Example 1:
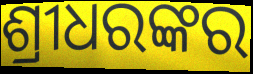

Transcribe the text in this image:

ଶ୍ରୀଧରଙ୍କର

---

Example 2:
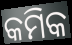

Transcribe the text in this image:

କମିକ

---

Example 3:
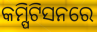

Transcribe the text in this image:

କମ୍ପିଟିସନରେ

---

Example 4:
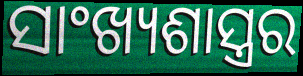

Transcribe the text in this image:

ସାଂଖ୍ୟଶାସ୍ତ୍ରର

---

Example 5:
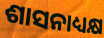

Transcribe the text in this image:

ଶାସନାଧ୍ୟକ୍ଷ